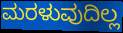
ಮರಳುವುದಿಲ್ಲ